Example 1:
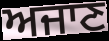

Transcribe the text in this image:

ਅਜਾਣ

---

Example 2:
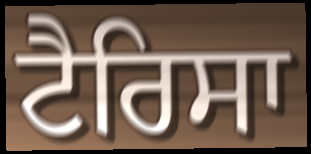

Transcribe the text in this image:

ਟੈਰਿਸਾ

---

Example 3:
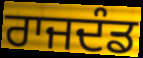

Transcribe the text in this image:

ਰਾਜਦੰਡ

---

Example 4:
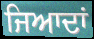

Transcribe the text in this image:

ਜਿਆਦਾਂ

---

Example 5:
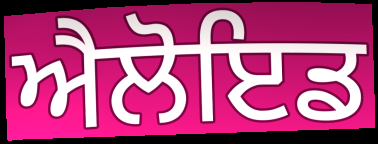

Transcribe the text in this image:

ਐਲੋਇਡ